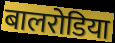
बालरोडिया